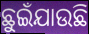
ଛୁଇଁଯାଉଛି